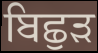
ਬਿਛੁੜ